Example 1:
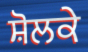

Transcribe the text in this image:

ਸ਼ੋਲਕੇ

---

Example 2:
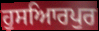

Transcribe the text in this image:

ਹੁਸਆਿਰਪੁਰ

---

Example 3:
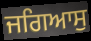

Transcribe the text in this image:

ਜਗਿਆਸੁ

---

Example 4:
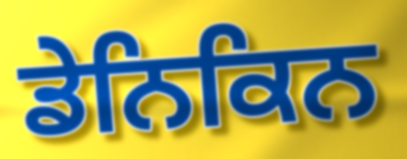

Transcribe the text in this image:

ਡੇਨਿਕਿਨ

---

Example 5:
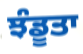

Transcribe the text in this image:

ਝੰਡੂਤਾ